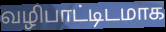
வழிபாட்டிடமாக